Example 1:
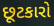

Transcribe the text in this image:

છૂટકારો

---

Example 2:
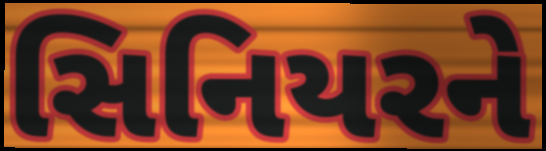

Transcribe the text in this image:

સિનિયરને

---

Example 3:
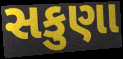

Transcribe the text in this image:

સકુણા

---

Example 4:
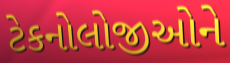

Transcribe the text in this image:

ટેકનોલોજીઓને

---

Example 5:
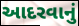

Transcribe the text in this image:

આદરવાનું